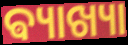
ଵ୍ୟାଖ୍ୟା